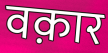
वक़ार